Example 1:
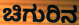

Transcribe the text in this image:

ಚಿಗುರಿನ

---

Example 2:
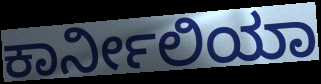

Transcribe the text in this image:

ಕಾರ್ನೀಲಿಯಾ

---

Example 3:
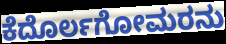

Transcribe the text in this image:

ಕೆದೊರ್ಲಗೋಮರನು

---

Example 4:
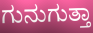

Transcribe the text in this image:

ಗುನುಗುತ್ತಾ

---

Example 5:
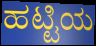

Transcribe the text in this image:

ಹಟ್ಟಿಯ